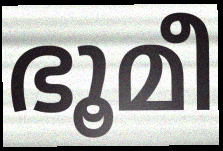
ഭൂമീ